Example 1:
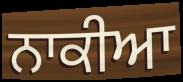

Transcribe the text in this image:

ਨਾਕੀਆ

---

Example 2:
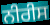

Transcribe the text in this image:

ਨੀਰੀਸ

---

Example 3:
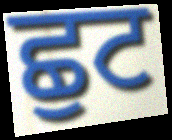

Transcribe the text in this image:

ਛੁਟ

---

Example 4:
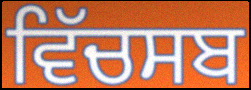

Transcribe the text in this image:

ਵਿੱਚਸਬ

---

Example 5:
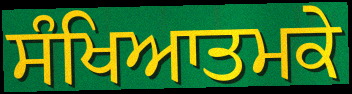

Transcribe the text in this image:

ਸੰਖਿਆਤਮਕੇ